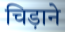
चिड़ाने